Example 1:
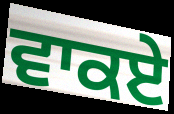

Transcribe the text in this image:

ਵਾਕਏ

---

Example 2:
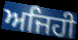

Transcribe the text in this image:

ਅਜਿਹੀ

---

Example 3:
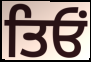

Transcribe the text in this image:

ਤਿਓਂ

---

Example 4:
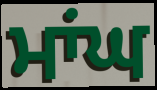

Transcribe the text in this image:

ਮਾਂਘ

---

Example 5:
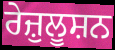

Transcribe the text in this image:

ਰੇਜ਼ੁਲੂਸ਼ਨ